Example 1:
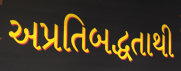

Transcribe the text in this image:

અપ્રતિબદ્ધતાથી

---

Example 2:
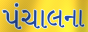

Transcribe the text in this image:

પંચાલના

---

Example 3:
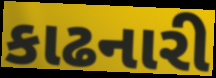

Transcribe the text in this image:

કાઢનારી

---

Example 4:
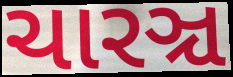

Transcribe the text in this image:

ચારઞ્ચ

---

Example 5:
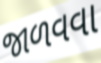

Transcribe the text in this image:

જાળવવા